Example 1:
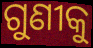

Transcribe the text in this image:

ଗୁଣୀକୁ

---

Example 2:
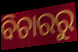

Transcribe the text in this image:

ବିଚାରରୁ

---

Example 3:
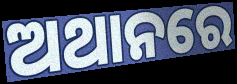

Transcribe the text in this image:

ଅଥାନରେ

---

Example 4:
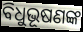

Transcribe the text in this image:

ବିଧୁଭୂଷଣଙ୍କ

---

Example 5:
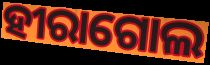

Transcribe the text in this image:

ହୀରାଗୋଲ